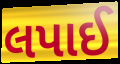
લપાઈ